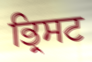
ਭ੍ਰਿਸਟ